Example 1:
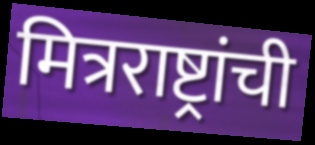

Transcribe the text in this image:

मित्रराष्ट्रांची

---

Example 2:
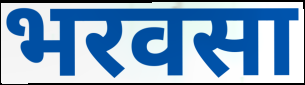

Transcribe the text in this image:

भरवसा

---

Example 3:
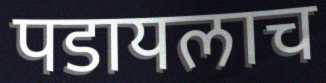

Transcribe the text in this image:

पडायलाच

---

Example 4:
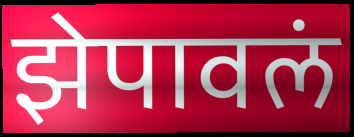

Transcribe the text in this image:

झेपावलं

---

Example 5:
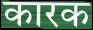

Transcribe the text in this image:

कारक